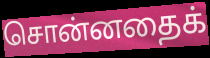
சொன்னதைக்